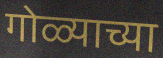
गोळ्याच्या